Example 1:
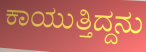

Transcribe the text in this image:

ಕಾಯುತ್ತಿದ್ದನು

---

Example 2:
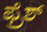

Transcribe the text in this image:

ಫ್ರೆಶ್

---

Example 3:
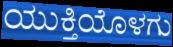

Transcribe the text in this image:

ಯುಕ್ತಿಯೊಳಗು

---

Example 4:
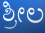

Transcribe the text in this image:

ಶ್ರೀಲ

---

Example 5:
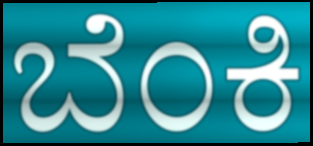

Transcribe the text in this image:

ಬೆಂಕಿ